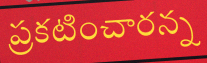
ప్రకటించారన్న